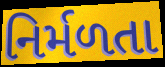
નિર્મળતા